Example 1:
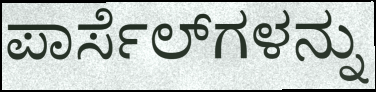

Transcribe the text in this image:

ಪಾರ್ಸೆಲ್‌ಗಳನ್ನು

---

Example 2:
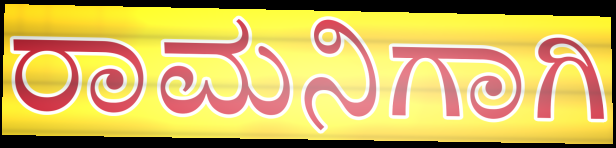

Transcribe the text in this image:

ರಾಮನಿಗಾಗಿ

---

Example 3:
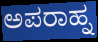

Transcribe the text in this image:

ಅಪರಾಹ್ನ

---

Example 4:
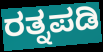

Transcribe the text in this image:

ರತ್ನಪಡಿ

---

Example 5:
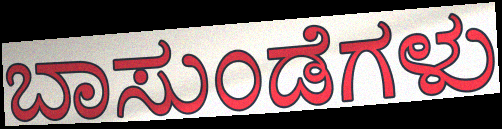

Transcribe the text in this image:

ಬಾಸುಂಡೆಗಳು